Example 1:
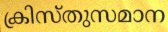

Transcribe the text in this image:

ക്രിസ്തുസമാന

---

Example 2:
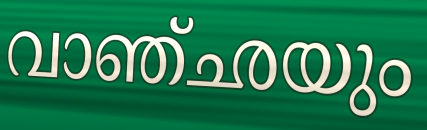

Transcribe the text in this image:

വാഞ്ഛയും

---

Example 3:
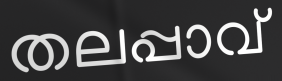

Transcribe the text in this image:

തലപ്പാവ്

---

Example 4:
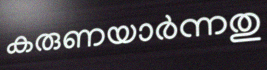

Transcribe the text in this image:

കരുണയാർന്നതു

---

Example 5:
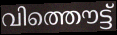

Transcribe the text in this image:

വിത്തൌട്ട്